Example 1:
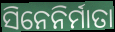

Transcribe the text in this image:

ସିନେନିର୍ମାତା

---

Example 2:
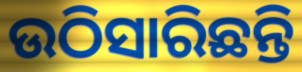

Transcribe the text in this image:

ଉଠିସାରିଛନ୍ତି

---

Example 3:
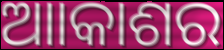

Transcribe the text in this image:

ଆାକାଶର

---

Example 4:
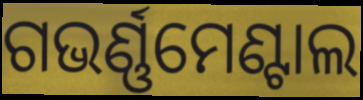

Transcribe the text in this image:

ଗଭର୍ଣ୍ଣମେଣ୍ଟାଲ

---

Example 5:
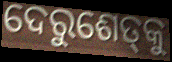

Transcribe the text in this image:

ଦେରୁଶେତ୍‌କୁ